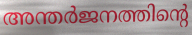
അന്തർജനത്തിന്റെ